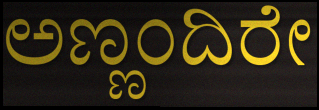
ಅಣ್ಣಂದಿರೇ